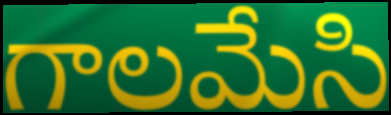
గాలమేసి